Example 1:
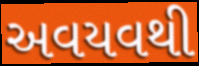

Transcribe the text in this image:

અવયવથી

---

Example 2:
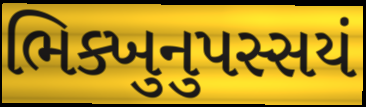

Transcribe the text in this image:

ભિક્ખુનુપસ્સયં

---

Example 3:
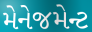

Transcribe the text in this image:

મેનેજમેન્ટ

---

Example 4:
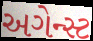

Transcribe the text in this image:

અગેન્સ્ટ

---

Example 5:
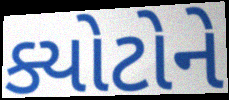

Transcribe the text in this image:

ક્યોટોને